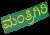
ಮಂತ್ರಿಗಿರಿ